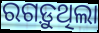
ରଗଡ଼ୁଥିଲା